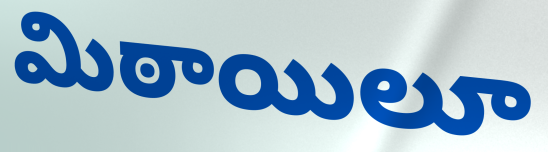
మిఠాయిలూ